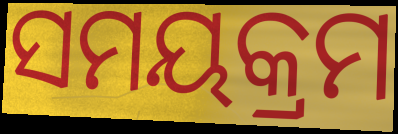
ସମୟକ୍ରମ